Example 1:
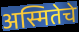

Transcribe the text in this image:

अस्मितेचे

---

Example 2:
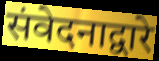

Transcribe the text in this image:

संवेदनाद्वारे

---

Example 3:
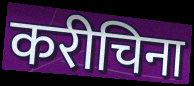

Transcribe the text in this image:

करीचिना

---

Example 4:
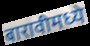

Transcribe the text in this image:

बारावीमध्ये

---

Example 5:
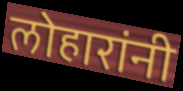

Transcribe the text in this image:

लोहारांनी